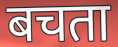
बचता